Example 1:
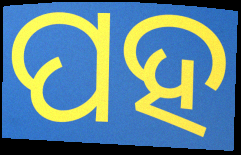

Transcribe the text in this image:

ପହ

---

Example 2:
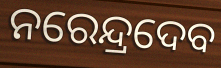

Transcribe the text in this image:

ନରେନ୍ଦ୍ରଦେବ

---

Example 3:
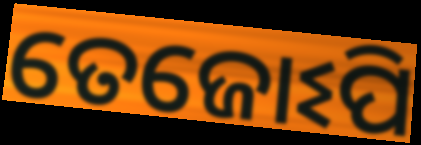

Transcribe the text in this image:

ତେଜୋଽପି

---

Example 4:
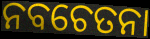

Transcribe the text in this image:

ନବଚେତନା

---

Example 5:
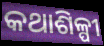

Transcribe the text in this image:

କଥାଶିଳ୍ପୀ